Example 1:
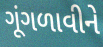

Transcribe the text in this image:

ગૂંગળાવીને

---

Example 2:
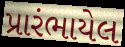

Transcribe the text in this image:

પ્રારંભાયેલ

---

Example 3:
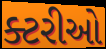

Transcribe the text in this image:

ક્ટરીઓ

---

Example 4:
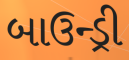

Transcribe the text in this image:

બાઉન્ડ્રી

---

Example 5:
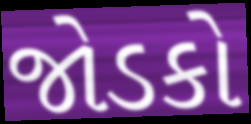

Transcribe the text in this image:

જોડકો